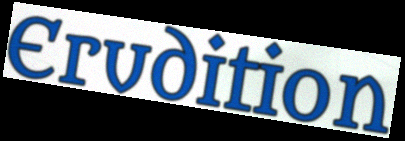
Erudition